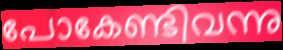
പോകേണ്ടിവന്നു